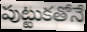
పుట్టుకతోనే